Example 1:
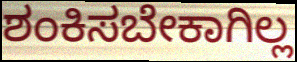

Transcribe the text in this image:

ಶಂಕಿಸಬೇಕಾಗಿಲ್ಲ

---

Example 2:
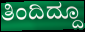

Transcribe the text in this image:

ತಿಂದಿದ್ದೂ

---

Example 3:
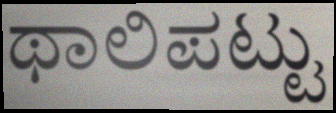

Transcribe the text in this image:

ಥಾಲಿಪಟ್ಟು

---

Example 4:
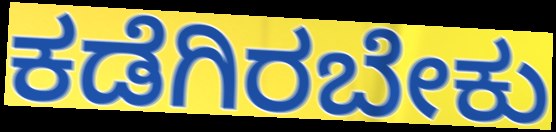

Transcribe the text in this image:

ಕಡೆಗಿರಬೇಕು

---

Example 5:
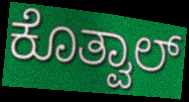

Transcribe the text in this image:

ಕೊತ್ವಾಲ್